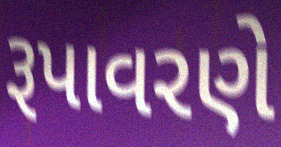
રૂપાવરણે